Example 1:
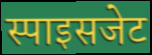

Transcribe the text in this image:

स्पाइसजेट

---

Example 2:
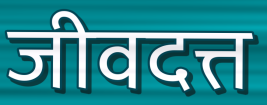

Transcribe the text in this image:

जीवदत्त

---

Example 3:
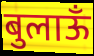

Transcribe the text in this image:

बुलाऊँ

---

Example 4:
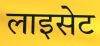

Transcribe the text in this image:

लाइसेट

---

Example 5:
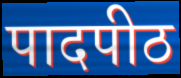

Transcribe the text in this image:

पादपीठ